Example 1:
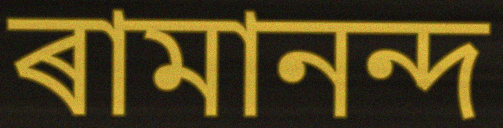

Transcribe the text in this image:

ৰামানন্দ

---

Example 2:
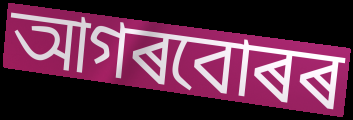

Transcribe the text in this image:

আগৰবোৰৰ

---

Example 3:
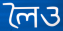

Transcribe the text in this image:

লৈও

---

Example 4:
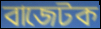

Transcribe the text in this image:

বাজেটক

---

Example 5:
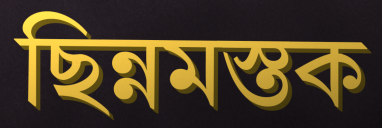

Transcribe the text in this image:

ছিন্নমস্তক